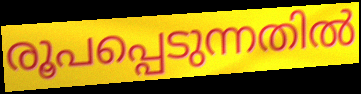
രൂപപ്പെടുന്നതിൽ